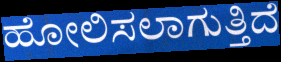
ಹೋಲಿಸಲಾಗುತ್ತಿದೆ